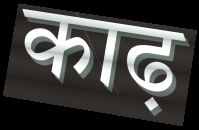
काढ़